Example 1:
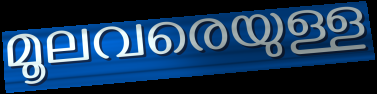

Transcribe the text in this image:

മൂലവരെയുള്ള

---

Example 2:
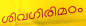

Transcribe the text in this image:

ശിവഗിരിമഠം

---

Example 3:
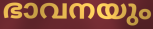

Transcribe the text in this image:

ഭാവനയും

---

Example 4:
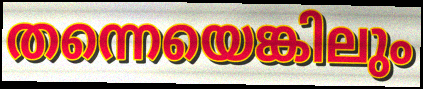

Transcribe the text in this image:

തന്നെയെങ്കിലും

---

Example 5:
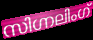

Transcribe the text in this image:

സിഗ്നലിംഗ്